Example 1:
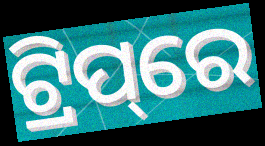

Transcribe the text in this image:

ଟ୍ରିପ୍‌ରେ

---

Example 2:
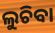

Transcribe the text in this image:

ଲୁଚିବା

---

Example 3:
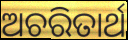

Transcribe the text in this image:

ଅଚରିତାର୍ଥ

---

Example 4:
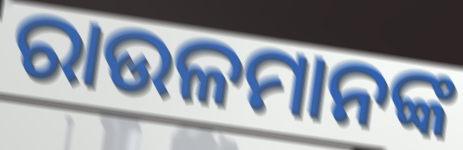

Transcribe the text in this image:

ରାଉଳମାନଙ୍କ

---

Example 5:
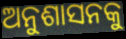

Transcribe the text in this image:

ଅନୁଶାସନକୁ